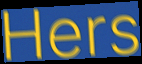
Hers